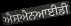
ਐਸਐਨਆਈਡੀ